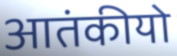
आतंकीयो